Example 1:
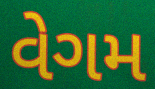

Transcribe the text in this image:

વેગમ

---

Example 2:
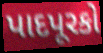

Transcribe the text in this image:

પાદપૂરકો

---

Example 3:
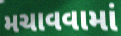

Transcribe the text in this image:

મચાવવામાં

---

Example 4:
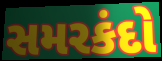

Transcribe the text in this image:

સમરકંદો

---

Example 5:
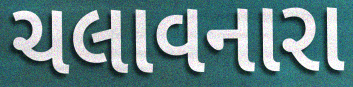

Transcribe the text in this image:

ચલાવનારા